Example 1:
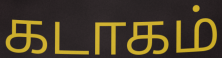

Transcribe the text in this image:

கடாகம்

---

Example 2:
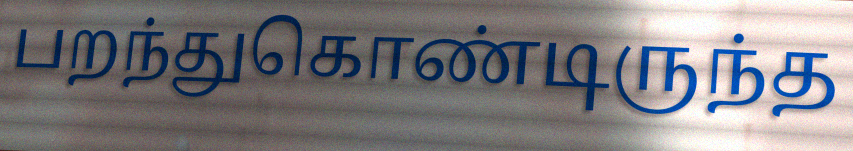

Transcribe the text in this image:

பறந்துகொண்டிருந்த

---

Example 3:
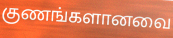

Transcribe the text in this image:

குணங்களானவை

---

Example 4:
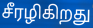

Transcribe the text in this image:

சீரழிகிறது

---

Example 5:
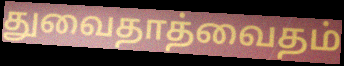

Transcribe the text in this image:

துவைதாத்வைதம்